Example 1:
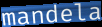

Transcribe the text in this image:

mandela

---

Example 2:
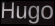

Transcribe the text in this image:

Hugo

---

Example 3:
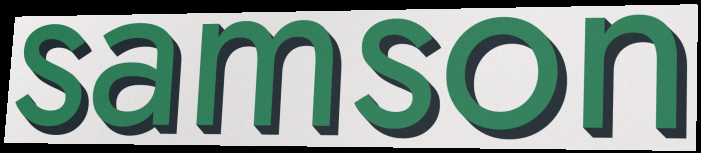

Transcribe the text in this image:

samson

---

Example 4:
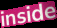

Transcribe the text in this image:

inside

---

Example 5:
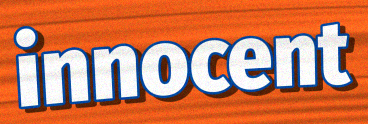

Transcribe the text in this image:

innocent